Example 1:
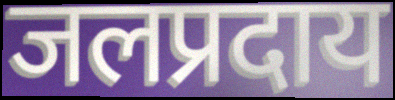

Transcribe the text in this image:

जलप्रदाय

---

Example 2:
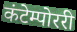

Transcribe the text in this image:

कंटेम्पोररी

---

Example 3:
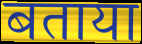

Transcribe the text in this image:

बताया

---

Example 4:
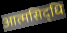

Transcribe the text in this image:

आत्मसिद्धि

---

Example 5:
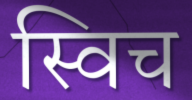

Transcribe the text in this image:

स्विच